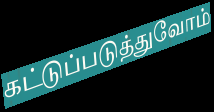
கட்டுப்படுத்துவோம்